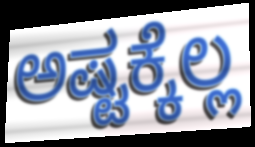
ಅಷ್ಟಕ್ಕೆಲ್ಲ